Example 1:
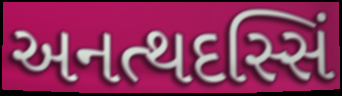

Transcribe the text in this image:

અનત્થદસ્સિં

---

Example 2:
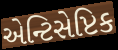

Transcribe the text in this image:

એન્ટિસેપ્ટિક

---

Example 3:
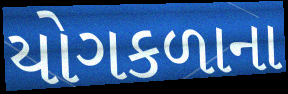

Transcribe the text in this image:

યોગકળાના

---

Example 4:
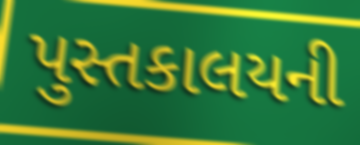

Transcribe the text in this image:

પુસ્તકાલયની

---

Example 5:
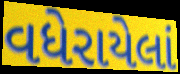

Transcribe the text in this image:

વધેરાયેલાં